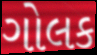
ગોલક